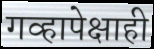
गव्हापेक्षाही